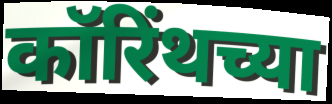
कॉरिंथच्या